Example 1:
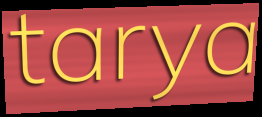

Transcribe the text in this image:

tarya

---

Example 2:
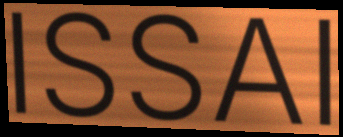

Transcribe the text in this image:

ISSAI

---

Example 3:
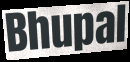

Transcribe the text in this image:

Bhupal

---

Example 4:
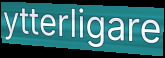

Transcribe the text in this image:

ytterligare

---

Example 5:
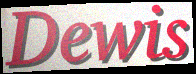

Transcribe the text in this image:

Dewis